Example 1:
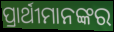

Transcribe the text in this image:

ପ୍ରାର୍ଥୀମାନଙ୍କର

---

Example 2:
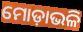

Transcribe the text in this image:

ମୋଡ଼ାଭଳି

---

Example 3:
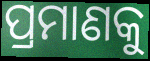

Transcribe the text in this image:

ପ୍ରମାଣକୁ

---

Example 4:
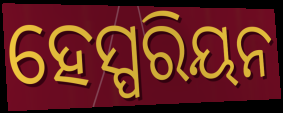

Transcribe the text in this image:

ହେସ୍ପରିୟନ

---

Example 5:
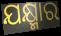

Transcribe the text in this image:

ଯକ୍ଷ୍ମାର